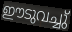
ഈടുവച്ചു്